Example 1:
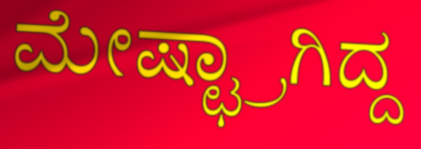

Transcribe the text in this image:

ಮೇಷ್ಟ್ರಾಗಿದ್ದ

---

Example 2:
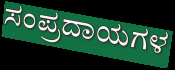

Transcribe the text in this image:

ಸಂಪ್ರದಾಯಗಳ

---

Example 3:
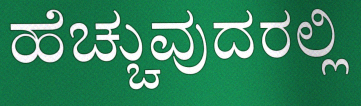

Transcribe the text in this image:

ಹೆಚ್ಚುವುದರಲ್ಲಿ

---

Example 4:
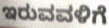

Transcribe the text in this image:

ಇರುವವಳಿಗೆ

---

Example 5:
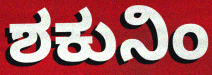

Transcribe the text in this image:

ಶಕುನಿಂ